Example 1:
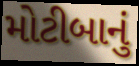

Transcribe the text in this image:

મોટીબાનું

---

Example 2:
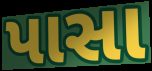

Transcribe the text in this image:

પાસા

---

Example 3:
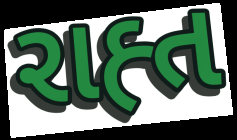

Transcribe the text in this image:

રાહ્ત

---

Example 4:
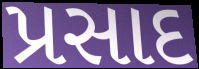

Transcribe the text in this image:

પ્રસાદ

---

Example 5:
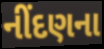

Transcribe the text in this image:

નીંદણના